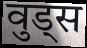
वुड्स